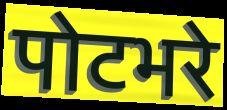
पोटभरे